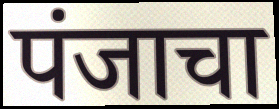
पंजाचा